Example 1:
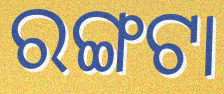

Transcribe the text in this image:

ରଙ୍ଗଟା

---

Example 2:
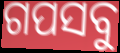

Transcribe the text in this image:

ଗପସବୁ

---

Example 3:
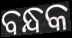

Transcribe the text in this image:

ବନ୍ଧକ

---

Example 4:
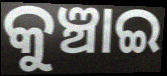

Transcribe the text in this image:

କୁଞ୍ଚାଇ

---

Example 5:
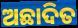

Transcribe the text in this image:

ଅଛାଦିତ